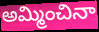
అమ్మించినా